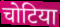
चोटिया